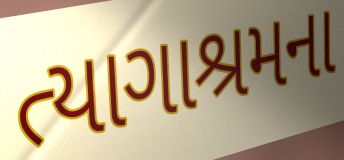
ત્યાગાશ્રમના